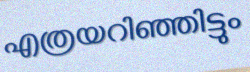
എത്രയറിഞ്ഞിട്ടും